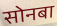
सोनबा